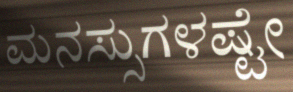
ಮನಸ್ಸುಗಳಷ್ಟೇ